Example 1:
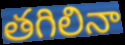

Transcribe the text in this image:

తగిలినా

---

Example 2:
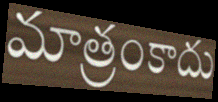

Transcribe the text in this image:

మాత్రంకాదు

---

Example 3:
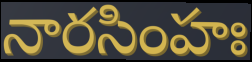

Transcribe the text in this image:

నారసింహః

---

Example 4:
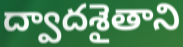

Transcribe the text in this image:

ద్వాదశైతాని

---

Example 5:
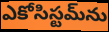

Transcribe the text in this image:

ఎకోసిస్టమ్‌ను